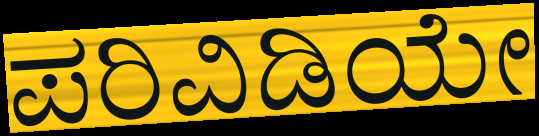
ಪರಿವಿಡಿಯೇ